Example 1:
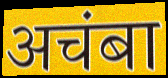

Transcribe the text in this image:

अचंबा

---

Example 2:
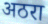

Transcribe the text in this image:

अठरा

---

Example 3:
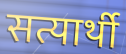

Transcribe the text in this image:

सत्यार्थी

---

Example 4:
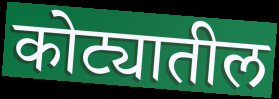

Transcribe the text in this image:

कोट्यातील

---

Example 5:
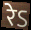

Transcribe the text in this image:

रेऽ